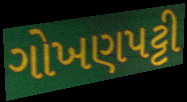
ગોખણપટ્ટી